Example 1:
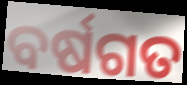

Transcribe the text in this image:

ବର୍ଷଗତ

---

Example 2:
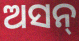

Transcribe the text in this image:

ଅସନ୍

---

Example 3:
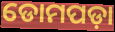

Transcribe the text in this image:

ଡୋମପଡ଼ା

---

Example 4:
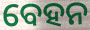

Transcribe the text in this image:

ବେହନ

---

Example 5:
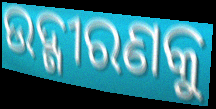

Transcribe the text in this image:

ଉଦ୍ଗୀରଣକୁ